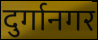
दुर्गानगर